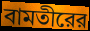
বামতীরের